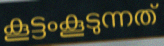
കൂട്ടംകൂടുന്നത്